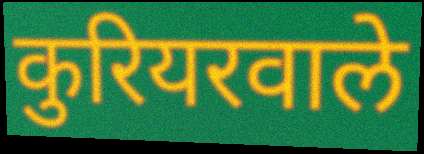
कुरियरवाले